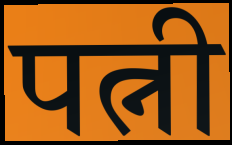
पत्नी